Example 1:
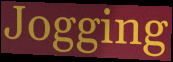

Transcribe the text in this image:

Jogging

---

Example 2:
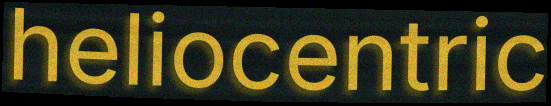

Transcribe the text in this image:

heliocentric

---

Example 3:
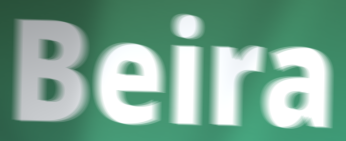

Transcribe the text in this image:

Beira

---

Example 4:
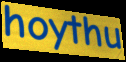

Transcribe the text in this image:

hoythu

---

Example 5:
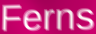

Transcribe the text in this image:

Ferns